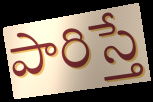
పారిస్తే